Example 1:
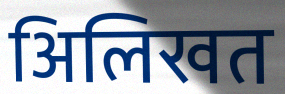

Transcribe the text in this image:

अिलिखत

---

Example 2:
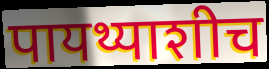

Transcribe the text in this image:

पायथ्याशीच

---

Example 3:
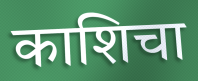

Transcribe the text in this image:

काशिचा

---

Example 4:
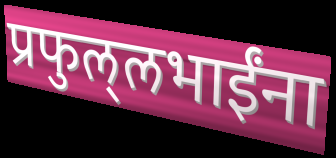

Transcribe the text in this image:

प्रफुल्लभाईंना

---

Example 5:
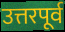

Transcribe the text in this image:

उत्तरपूर्व